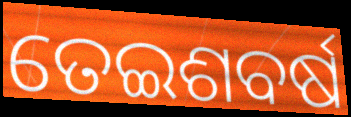
ତେଇଶବର୍ଷ